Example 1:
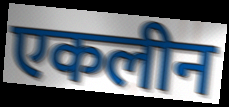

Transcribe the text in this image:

एकलीन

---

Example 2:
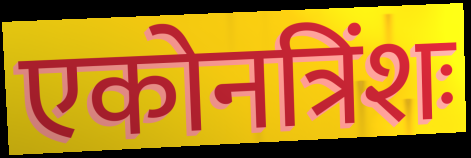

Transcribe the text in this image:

एकोनत्रिंशः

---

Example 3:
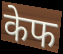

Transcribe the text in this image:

केफ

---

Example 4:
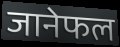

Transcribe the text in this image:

जानेफल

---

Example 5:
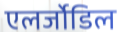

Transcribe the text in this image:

एलर्जोडिल